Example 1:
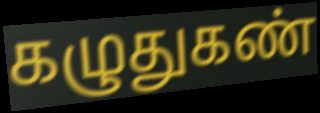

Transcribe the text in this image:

கழுதுகண்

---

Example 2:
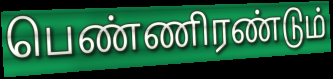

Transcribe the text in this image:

பெண்ணிரண்டும்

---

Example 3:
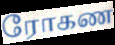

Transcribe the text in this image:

ரோகண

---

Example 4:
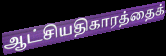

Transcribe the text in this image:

ஆட்சியதிகாரத்தைக்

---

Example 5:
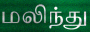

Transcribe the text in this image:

மலிந்து